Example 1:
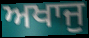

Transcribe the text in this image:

ਅਖਾਜੁ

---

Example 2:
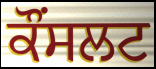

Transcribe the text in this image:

ਕੌਂਸਲਟ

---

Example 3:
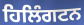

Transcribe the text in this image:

ਹਿਲਿੰਗਟਨ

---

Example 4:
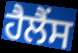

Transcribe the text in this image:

ਹੈਲੈਂਸ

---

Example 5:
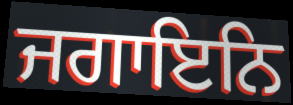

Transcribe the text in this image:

ਜਗਾਇਨਿ